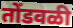
तोंडवळी